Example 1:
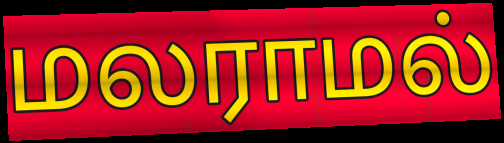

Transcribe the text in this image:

மலராமல்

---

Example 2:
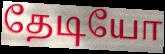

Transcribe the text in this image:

தேடியோ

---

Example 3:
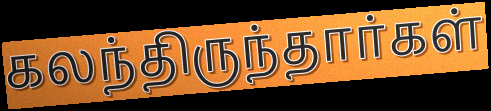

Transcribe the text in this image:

கலந்திருந்தார்கள்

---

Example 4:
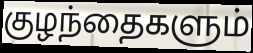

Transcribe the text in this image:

குழந்தைகளும்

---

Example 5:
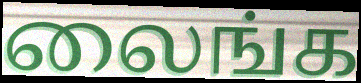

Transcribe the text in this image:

லைங்க